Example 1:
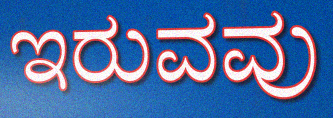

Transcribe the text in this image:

ಇರುವವು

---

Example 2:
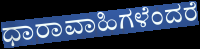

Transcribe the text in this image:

ಧಾರಾವಾಹಿಗಳೆಂದರೆ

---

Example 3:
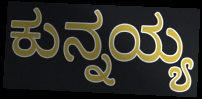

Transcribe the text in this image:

ಕುನ್ನಯ್ಯ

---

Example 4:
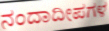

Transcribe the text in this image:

ನಂದಾದೀಪಗಳ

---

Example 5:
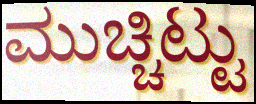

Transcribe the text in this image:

ಮುಚ್ಚಿಟ್ಟು